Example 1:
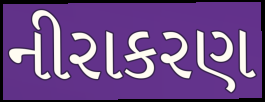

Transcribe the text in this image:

નીરાકરણ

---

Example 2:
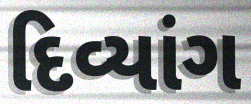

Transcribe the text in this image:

દિવ્યાંગ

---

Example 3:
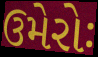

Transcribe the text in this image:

ઉમેરોઃ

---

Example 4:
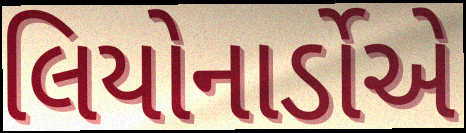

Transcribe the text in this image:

લિયોનાર્ડોએ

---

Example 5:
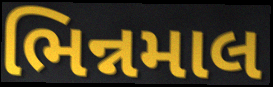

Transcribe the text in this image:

ભિન્નમાલ